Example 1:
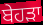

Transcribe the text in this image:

ਬੇਹੜਾ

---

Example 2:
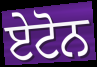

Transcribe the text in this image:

ਏਟੋਨ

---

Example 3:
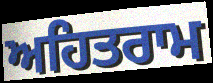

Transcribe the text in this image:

ਅਹਿਤਰਾਮ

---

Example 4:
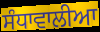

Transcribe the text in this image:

ਸੰਧਾਵਾਲੀਆ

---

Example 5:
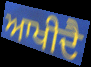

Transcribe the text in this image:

ਆਖੀਦੈ